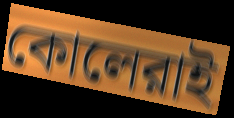
কোলেরাই